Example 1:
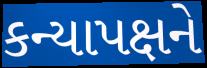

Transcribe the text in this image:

કન્યાપક્ષને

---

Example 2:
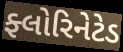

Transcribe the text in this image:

ફ્લોરિનેટેડ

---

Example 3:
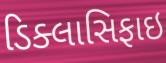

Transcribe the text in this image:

ડિક્લાસિફાઇ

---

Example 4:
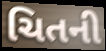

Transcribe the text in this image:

ચિતની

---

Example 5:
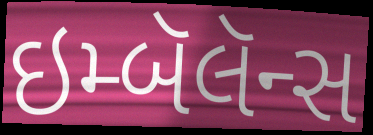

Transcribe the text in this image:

ઇમ્બૅલૅન્સ